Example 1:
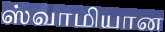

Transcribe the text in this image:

ஸ்வாமியான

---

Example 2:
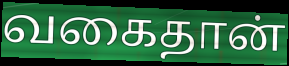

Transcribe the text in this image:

வகைதான்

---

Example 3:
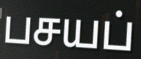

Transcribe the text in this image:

பசயப்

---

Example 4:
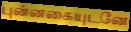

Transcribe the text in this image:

புன்னகையுடனே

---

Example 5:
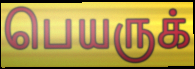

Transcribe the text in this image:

பெயருக்